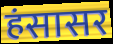
हंसासर